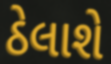
ઠેલાશે